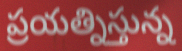
ప్రయత్నిస్తున్న